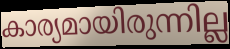
കാര്യമായിരുന്നില്ല